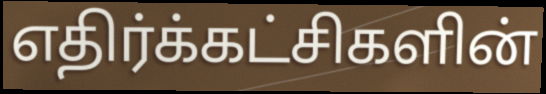
எதிர்க்கட்சிகளின்